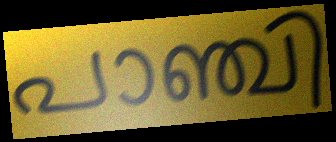
പാഞ്ചി